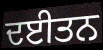
ਦਈਤਨ